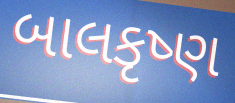
બાલકૃષ્ણ